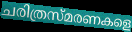
ചരിത്രസ്മരണകളെ